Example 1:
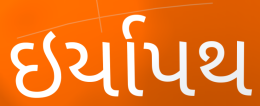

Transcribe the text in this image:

ઇર્યાપથ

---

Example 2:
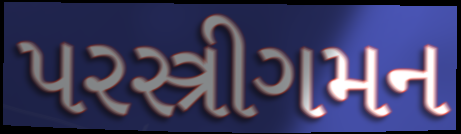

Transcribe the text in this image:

પરસ્ત્રીગમન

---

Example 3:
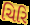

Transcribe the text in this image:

ચિરિ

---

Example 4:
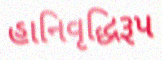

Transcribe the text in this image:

હાનિવૃદ્ધિરૂપ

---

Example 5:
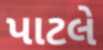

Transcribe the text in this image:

પાટલે